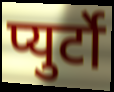
प्युर्टो